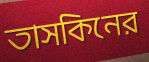
তাসকিনের